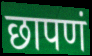
छापणं